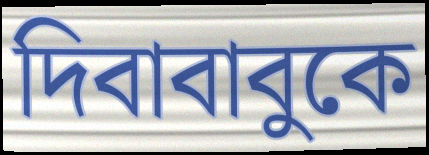
দিবাবাবুকে